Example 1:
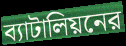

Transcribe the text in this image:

ব্যাটালিয়নের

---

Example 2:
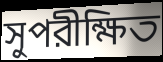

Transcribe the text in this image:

সুপরীক্ষিত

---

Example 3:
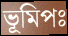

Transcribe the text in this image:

ভূমিপঃ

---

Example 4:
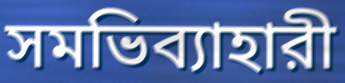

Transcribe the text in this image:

সমভিব্যাহারী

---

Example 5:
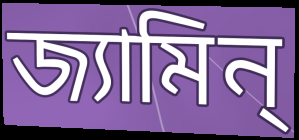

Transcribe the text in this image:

জ্যামিন্